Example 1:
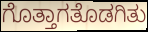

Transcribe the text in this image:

ಗೊತ್ತಾಗತೊಡಗಿತು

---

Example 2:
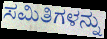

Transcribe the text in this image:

ಸಮಿತಿಗಳನ್ನು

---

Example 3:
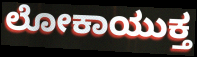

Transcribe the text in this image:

ಲೋಕಾಯುಕ್ತ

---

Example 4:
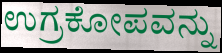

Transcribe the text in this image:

ಉಗ್ರಕೋಪವನ್ನು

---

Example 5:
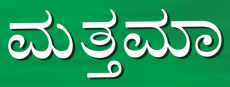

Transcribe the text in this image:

ಮತ್ತಮಾ